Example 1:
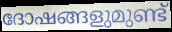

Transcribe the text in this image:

ദോഷങ്ങളുമുണ്ട്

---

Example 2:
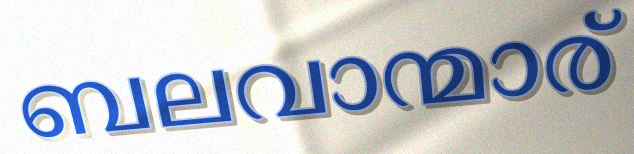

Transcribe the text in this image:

ബലവാന്മാര്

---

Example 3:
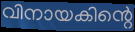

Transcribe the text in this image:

വിനായകിന്റെ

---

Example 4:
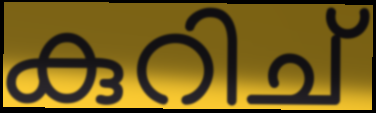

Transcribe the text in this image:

കുറിച്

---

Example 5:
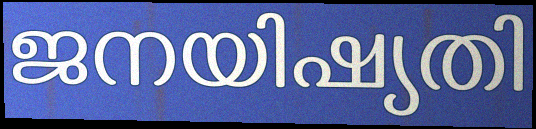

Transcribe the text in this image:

ജനയിഷ്യതി